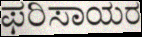
ಫರಿಸಾಯರ